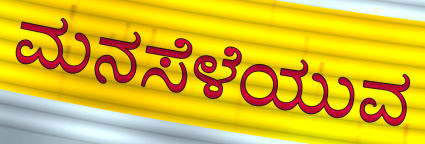
ಮನಸೆಳೆಯುವ